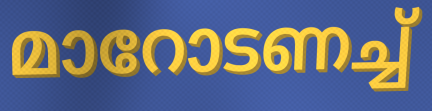
മാറോടണച്ച്